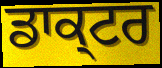
ਡਾਕ੍ਟਰ